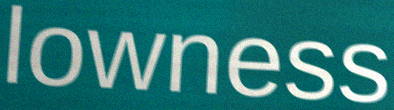
lowness